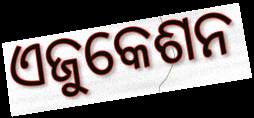
ଏଜୁକେଶନ